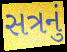
સત્રનું